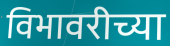
विभावरीच्या